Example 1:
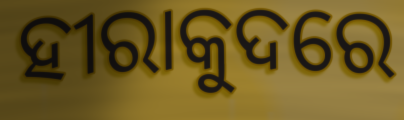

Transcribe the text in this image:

ହୀରାକୁଦରେ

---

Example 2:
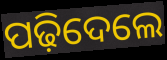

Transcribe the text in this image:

ପଢ଼ିଦେଲେ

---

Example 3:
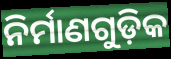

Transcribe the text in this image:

ନିର୍ମାଣଗୁଡ଼ିକ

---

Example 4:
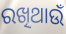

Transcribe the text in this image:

ରଖିଥାଉଁ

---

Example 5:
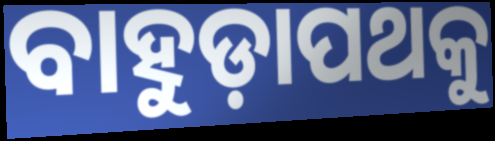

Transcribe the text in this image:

ବାହୁଡ଼ାପଥକୁ